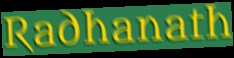
Radhanath